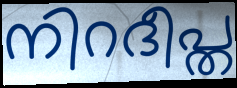
നിറദീപ്ത